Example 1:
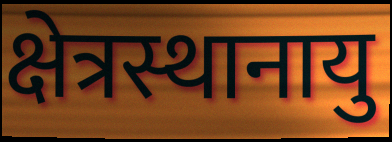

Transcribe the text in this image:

क्षेत्रस्थानायु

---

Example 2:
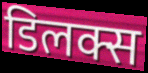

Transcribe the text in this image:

डिलक्स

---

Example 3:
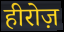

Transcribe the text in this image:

हीरोज़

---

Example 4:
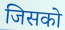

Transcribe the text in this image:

जिसको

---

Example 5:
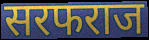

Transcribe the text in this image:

सरफराज